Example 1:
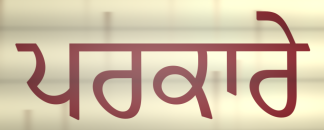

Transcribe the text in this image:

ਪਰਕਾਰੇ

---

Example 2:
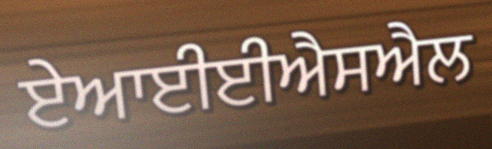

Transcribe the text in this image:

ਏਆਈਈਐਸਐਲ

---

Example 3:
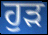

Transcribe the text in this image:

ਹੁੜ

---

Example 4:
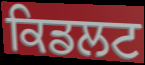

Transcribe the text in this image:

ਕਿਡਲਟ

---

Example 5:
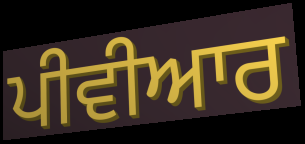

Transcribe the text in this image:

ਪੀਵੀਆਰ